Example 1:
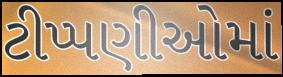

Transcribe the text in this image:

ટીપ્પણીઓમાં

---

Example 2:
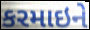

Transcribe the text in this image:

કરમાઇને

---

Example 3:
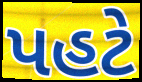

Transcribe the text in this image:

પહટે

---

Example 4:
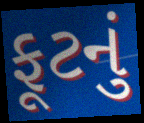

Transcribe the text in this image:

ફૂટનું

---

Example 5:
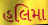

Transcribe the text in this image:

હલિમા